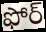
ఫోర్